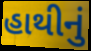
હાથીનું